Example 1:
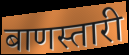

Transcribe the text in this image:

बाणस्तारी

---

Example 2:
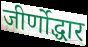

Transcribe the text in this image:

जीर्णोद्धार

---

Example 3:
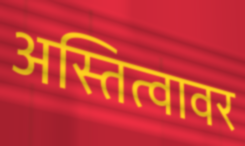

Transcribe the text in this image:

अस्तित्वावर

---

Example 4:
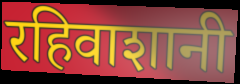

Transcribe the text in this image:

रहिवाशानी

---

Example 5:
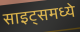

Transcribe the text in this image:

साइट्समध्ये